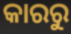
କାରରୁ